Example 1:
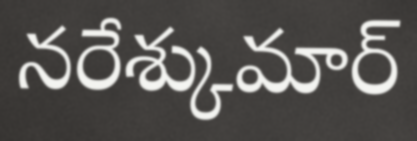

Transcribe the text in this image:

నరేశ్కుమార్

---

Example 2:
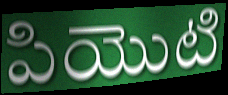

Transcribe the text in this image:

పియొటి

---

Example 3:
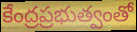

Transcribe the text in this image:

కేంద్రప్రభుత్వంతో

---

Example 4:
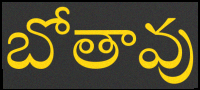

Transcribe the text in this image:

బోతావు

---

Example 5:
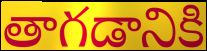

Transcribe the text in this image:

తాగడానికి